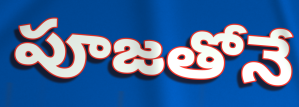
పూజతోనే